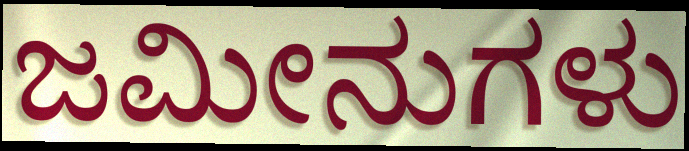
ಜಮೀನುಗಳು